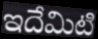
ఇదేమిటి